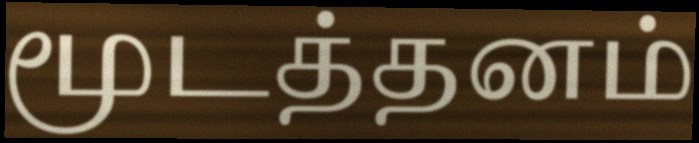
மூடத்தனம்